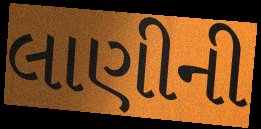
લાણીની